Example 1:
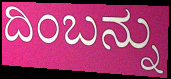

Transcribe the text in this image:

ದಿಂಬನ್ನು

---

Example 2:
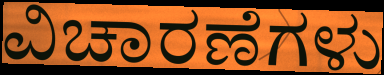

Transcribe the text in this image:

ವಿಚಾರಣೆಗಳು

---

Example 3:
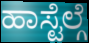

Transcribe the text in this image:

ಹಾಸ್ಟೆಲ್ಗೆ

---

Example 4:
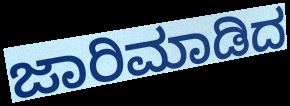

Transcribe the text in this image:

ಜಾರಿಮಾಡಿದ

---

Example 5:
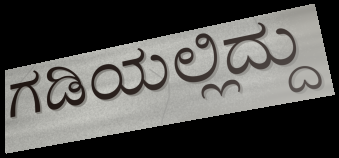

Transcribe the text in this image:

ಗಡಿಯಲ್ಲಿದ್ದು